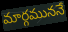
మార్గముననే